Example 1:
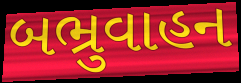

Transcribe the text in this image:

બભ્રુવાહન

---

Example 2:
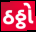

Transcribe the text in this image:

ઠઠ્ઠો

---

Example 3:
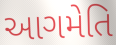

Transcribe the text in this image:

આગમેતિ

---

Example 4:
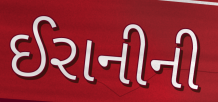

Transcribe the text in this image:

ઈરાનીની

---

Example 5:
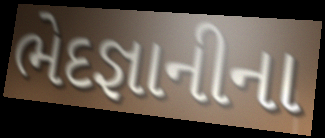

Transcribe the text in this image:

ભેદજ્ઞાનીના